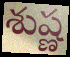
శుష్ణ